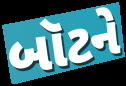
બૉટને